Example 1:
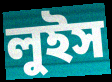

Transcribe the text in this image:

লুইস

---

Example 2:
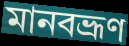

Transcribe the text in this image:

মানবভ্রূণ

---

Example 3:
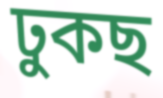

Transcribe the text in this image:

ঢুকছ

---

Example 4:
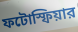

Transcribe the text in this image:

ফটোস্ফিয়ার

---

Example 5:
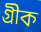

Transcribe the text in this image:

গ্রীক